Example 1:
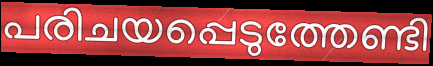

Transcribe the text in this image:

പരിചയപ്പെടുത്തേണ്ടി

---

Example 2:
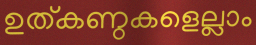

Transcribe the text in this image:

ഉത്കണ്ഠകളെല്ലാം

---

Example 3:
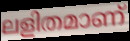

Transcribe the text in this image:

ലളിതമാണ്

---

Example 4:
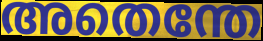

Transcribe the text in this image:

അതെന്തേ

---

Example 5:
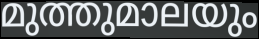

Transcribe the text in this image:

മുത്തുമാലയും